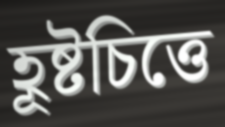
হূষ্টচিত্তে